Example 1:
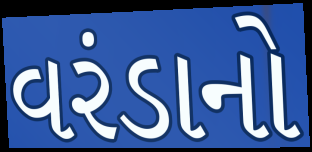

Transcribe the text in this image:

વરંડાનો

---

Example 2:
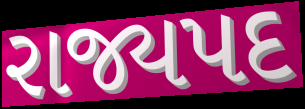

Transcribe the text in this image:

રાજ્યપદ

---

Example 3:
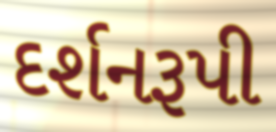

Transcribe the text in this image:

દર્શનરૂપી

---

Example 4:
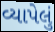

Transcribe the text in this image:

વ્યાપેલું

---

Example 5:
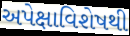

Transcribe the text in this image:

અપેક્ષાવિશેષથી